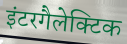
इंटरगैलेक्टिक